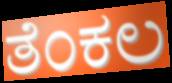
ತೆಂಕಲ